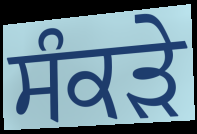
ਸੰਕੜੇ